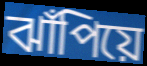
ঝাঁপিয়ে